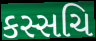
કસ્સચિ